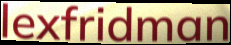
lexfridman